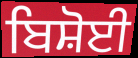
ਬਿਸ਼ੋਈ